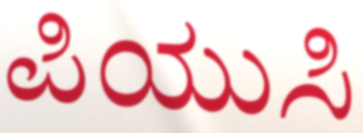
ಪಿಯುಸಿ